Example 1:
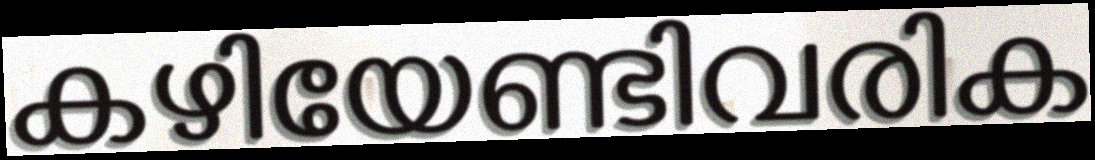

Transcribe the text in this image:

കഴിയേണ്ടിവരിക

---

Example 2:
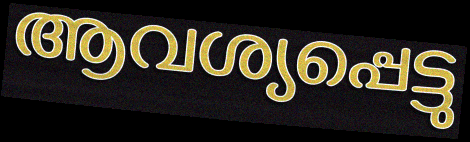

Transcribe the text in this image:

ആവശ്യപ്പെട്ടു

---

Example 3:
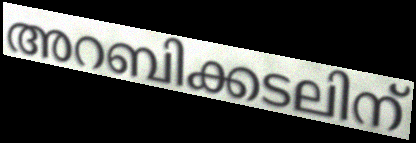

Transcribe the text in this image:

അറബിക്കടലിന്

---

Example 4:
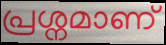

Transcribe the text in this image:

പ്രശ്നമാണ്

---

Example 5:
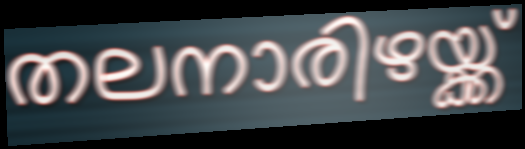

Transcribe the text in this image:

തലനാരിഴയ്ക്ക്